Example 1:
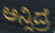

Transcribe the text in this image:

ಅನ್ಸಿದ್ರೆ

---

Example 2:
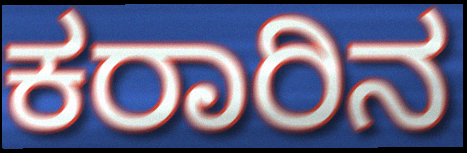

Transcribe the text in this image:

ಕರಾರಿನ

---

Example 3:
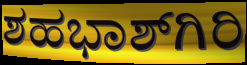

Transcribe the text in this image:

ಶಹಭಾಶ್‌ಗಿರಿ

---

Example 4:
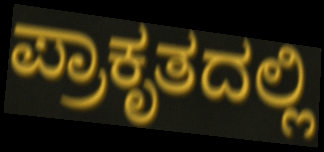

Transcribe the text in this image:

ಪ್ರಾಕೃತದಲ್ಲಿ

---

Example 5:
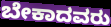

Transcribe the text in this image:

ಬೇಕಾದವರು